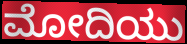
ಮೋದಿಯು